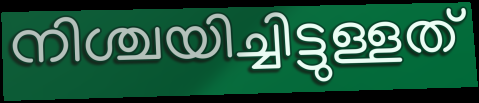
നിശ്ചയിച്ചിട്ടുള്ളത്